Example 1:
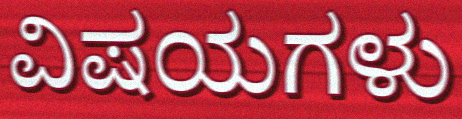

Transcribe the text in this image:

ವಿಷಯಗಳು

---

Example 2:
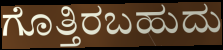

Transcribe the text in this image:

ಗೊತ್ತಿರಬಹುದು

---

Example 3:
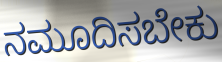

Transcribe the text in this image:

ನಮೂದಿಸಬೇಕು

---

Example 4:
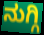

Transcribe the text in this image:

ನುಗ್ಗಿ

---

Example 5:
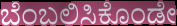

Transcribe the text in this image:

ಬೆಂಬಲಿಸಿಕೊಂಡೇ